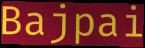
Bajpai